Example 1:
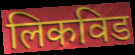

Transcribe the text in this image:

लिकविड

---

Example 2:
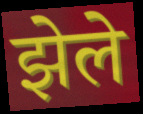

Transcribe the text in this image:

झेले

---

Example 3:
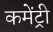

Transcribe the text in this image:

कमेंट्री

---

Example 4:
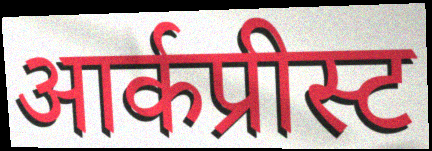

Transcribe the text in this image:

आर्कप्रीस्ट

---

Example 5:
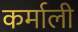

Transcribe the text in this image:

कर्माली